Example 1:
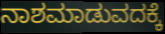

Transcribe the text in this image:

ನಾಶಮಾಡುವದಕ್ಕೆ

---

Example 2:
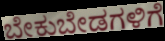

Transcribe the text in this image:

ಬೇಕುಬೇಡಗಳಿಗೆ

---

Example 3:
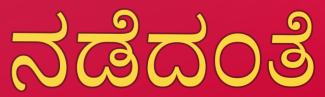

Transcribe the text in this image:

ನಡೆದಂತೆ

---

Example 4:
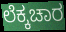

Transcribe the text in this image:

ಲೆಕ್ಕಚಾರ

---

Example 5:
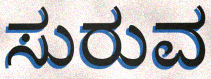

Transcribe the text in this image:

ಸುರುವ